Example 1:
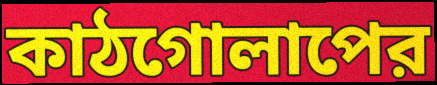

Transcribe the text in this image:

কাঠগোলাপের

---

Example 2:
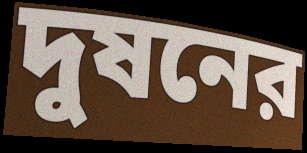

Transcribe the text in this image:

দুষনের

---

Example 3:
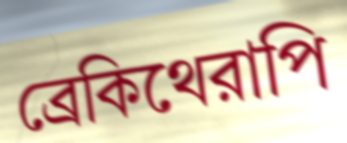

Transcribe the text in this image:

ব্রেকিথেরাপি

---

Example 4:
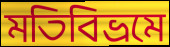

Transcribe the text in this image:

মতিবিভ্রমে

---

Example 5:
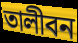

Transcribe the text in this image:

তালীবন